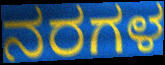
ನರಗಳ